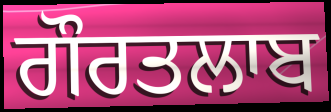
ਗੌਰਤਲਾਬ